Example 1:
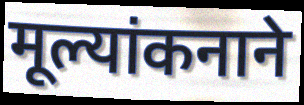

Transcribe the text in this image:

मूल्यांकनाने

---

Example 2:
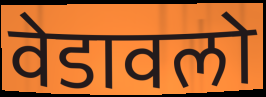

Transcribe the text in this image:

वेडावलो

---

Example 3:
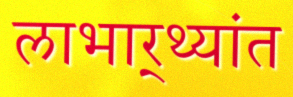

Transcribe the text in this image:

लाभार्थ्यांत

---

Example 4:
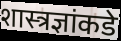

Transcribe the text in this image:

शास्त्रज्ञांकडे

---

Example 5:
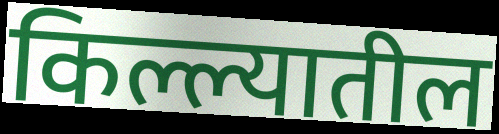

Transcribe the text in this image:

किल्ल्यातील